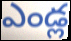
ఎండ్ల